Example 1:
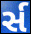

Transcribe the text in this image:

ર્સ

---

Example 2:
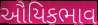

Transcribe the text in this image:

ઔયિકભાવ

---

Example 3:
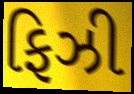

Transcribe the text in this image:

ફિઝી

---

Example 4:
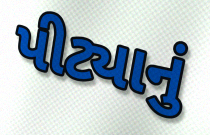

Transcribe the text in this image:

પીટ્યાનું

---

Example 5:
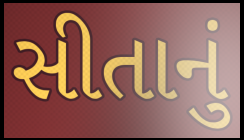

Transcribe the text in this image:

સીતાનું